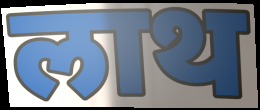
लाथ